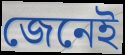
জেনেই